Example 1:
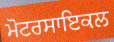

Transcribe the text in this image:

ਮੋਟਰਸਾਇਕਲ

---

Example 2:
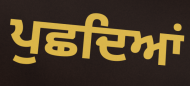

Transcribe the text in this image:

ਪੁਛਦਿਆਂ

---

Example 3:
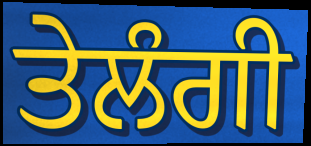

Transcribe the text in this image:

ਤੇਲੰਗੀ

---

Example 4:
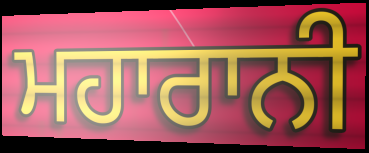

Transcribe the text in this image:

ਮਹਾਰਾਨੀ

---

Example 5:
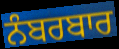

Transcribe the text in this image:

ਨੰਬਰਬਾਰ